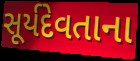
સૂર્યદેવતાના